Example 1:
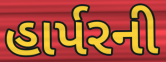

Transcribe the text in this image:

હાર્પરની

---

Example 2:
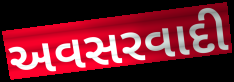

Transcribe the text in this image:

અવસરવાદી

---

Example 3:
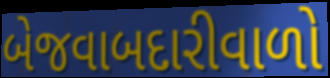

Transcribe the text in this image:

બેજવાબદારીવાળો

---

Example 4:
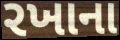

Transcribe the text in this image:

રખાના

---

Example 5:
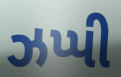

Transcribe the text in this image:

ઝપ્પી